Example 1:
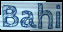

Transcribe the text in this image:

Bahi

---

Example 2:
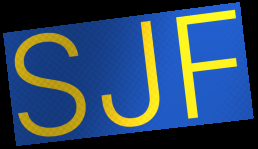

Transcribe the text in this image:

SJF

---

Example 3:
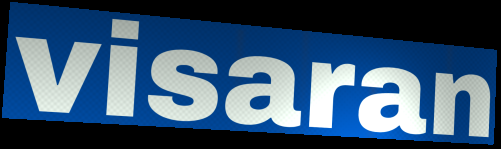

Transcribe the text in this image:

visaran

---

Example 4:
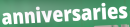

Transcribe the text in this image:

anniversaries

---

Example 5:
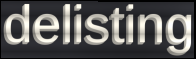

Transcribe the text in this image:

delisting